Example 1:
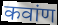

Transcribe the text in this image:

कवांण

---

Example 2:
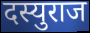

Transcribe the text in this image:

दस्युराज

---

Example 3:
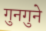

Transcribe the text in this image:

गुनगुने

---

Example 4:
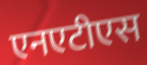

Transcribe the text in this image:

एनएटीएस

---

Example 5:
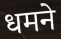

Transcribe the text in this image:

धमने